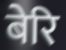
बेरि